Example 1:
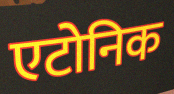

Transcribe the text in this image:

एटोनिक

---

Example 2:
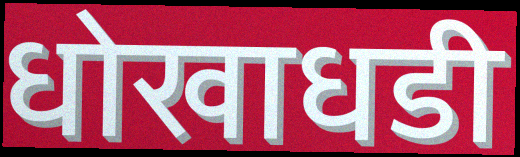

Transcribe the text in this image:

धोखाधडी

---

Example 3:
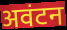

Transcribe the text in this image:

अवंटन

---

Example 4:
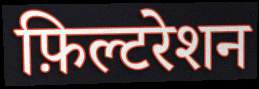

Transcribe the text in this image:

फ़िल्टरेशन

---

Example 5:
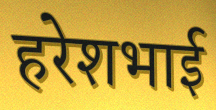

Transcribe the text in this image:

हरेशभाई